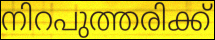
നിറപുത്തരിക്ക്